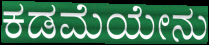
ಕಡಮೆಯೇನು